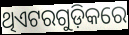
ଥିଏଟରଗୁଡ଼ିକରେ